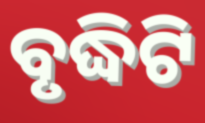
ବୃଦ୍ଧିଟି